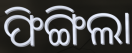
ଫିଙ୍ଗିଲା